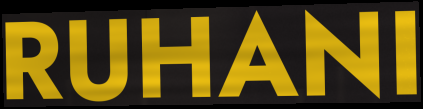
RUHANI